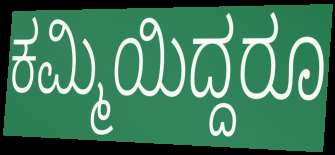
ಕಮ್ಮಿಯಿದ್ದರೂ